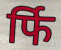
र्फि